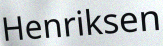
Henriksen